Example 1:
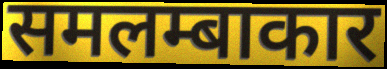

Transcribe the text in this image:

समलम्बाकार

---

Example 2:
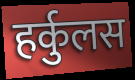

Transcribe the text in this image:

हर्कुलस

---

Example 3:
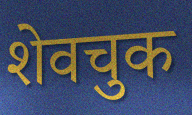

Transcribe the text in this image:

शेवचुक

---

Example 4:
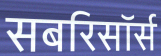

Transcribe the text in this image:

सबरिसॉर्स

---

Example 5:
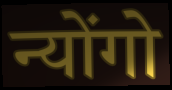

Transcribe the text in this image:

न्योंगो